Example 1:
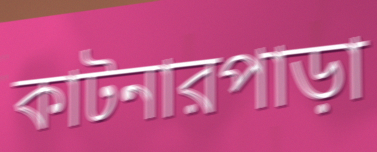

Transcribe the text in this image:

কাটনারপাড়া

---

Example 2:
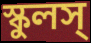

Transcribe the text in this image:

স্কুলস্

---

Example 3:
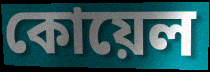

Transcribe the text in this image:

কোয়েল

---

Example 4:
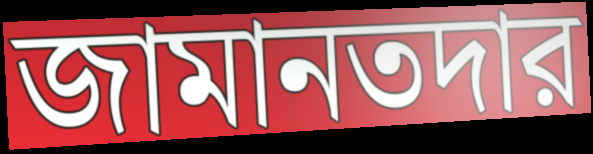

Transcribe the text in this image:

জামানতদার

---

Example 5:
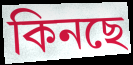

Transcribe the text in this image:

কিনছে